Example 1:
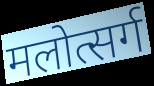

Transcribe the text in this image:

मलोत्सर्ग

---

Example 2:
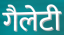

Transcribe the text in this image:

गैलेटी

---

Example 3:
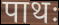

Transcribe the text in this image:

पाथः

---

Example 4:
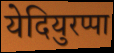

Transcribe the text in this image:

येदियुरप्पा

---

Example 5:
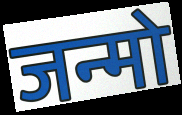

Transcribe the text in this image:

जन्मो